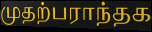
முதற்பராந்தக